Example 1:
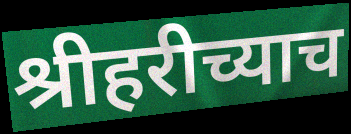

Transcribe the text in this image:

श्रीहरीच्याच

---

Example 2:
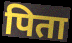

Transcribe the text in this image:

पिता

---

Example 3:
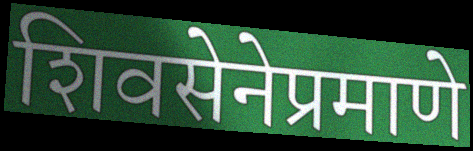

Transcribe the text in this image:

शिवसेनेप्रमाणे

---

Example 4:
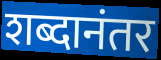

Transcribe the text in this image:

शब्दानंतर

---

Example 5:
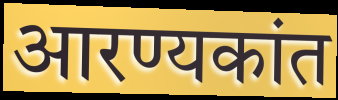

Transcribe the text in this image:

आरण्यकांत